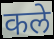
कले